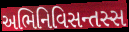
અભિનિવિસન્તસ્સ